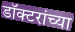
डॉक्‍टरांच्या